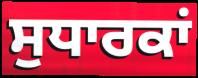
ਸੁਧਾਰਕਾਂ